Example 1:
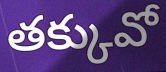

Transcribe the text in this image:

తక్కువో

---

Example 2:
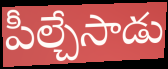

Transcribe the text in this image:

పీల్చేసాడు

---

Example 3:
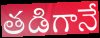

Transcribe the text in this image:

తడిగానే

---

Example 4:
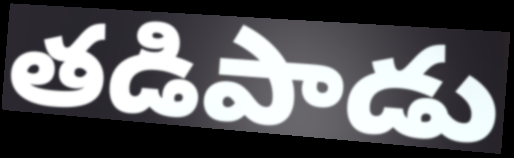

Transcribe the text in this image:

తడిపాడు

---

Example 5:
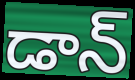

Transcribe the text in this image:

డాన్